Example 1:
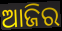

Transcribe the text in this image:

ଆଜିର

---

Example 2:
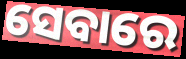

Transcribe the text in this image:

ସେବାରେ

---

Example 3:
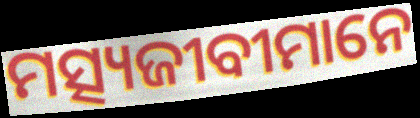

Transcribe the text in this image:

ମତ୍ସ୍ୟଜୀବୀମାନେ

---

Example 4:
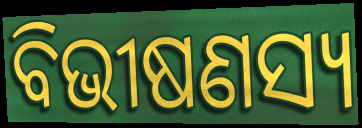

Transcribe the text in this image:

ବିଭୀଷଣସ୍ୟ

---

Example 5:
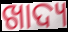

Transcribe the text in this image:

ଖାଦ୍ୟ